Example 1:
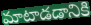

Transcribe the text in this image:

మాటాడడానికి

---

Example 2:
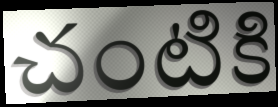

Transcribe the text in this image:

చంటికి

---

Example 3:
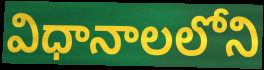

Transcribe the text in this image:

విధానాలలోని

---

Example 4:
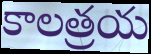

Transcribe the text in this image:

కాలత్రయ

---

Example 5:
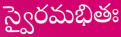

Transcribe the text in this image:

స్వైరమభితః